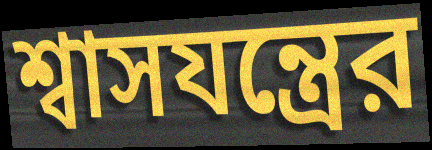
শ্বাসযন্ত্রের